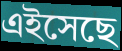
এইসেছে